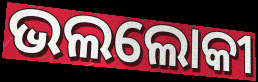
ଭଲଲୋକୀ